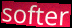
softer